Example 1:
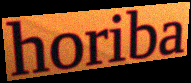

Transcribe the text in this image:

horiba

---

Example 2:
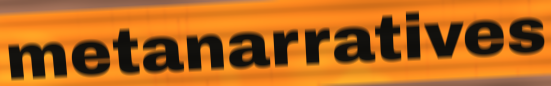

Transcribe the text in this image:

metanarratives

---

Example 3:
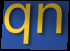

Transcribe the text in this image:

qn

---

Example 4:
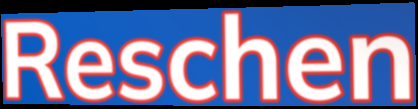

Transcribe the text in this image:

Reschen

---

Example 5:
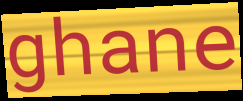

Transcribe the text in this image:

ghane